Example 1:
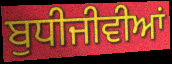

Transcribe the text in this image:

ਬੁਧੀਜੀਵੀਆਂ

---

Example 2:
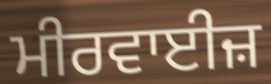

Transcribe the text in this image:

ਮੀਰਵਾਈਜ਼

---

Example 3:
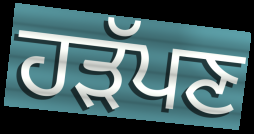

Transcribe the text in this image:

ਹੜੱਪਣ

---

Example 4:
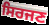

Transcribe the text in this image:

ਸਿਰਜਣ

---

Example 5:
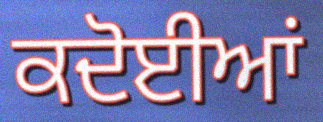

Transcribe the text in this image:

ਕਦੋਈਆਂ